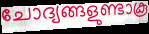
ചോദ്യങ്ങളുണ്ടാകൂ